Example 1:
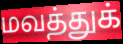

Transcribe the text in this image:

மவத்துக்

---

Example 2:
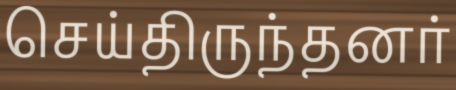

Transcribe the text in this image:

செய்திருந்தனர்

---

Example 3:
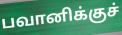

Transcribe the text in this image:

பவானிக்குச்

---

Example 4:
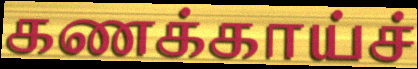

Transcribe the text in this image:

கணக்காய்ச்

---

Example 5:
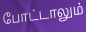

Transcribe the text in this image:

போட்டாலும்